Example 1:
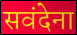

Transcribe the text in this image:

सवंदेना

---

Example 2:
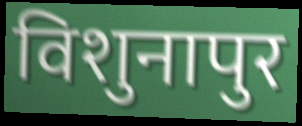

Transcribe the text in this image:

विशुनापुर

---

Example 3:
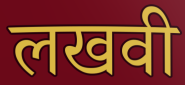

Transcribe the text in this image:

लखवी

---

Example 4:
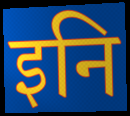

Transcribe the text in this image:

इनि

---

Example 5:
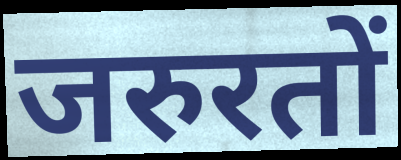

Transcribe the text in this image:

जरुरतों